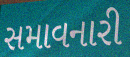
સમાવનારી